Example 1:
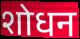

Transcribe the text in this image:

शोधन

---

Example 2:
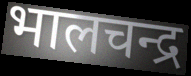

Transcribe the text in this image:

भालचन्द्र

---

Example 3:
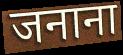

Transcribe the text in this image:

जनाना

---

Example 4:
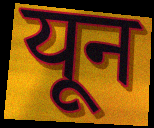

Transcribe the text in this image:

यून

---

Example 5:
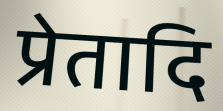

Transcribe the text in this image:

प्रेतादि